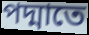
পদ্মাতে